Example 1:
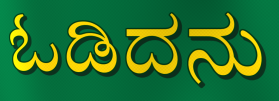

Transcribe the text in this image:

ಓಡಿದನು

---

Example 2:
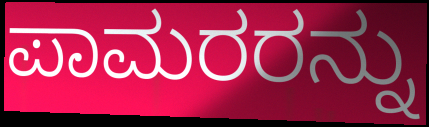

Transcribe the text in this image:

ಪಾಮರರನ್ನು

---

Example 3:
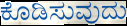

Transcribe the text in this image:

ಕೊಡಿಸುವುದು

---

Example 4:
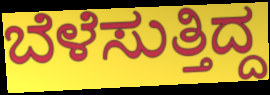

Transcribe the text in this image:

ಬೆಳೆಸುತ್ತಿದ್ದ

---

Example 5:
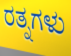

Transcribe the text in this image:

ರತ್ನಗಳು